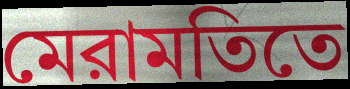
মেরামতিতে